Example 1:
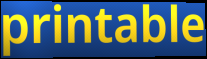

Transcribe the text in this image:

printable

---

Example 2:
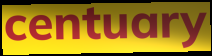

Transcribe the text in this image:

centuary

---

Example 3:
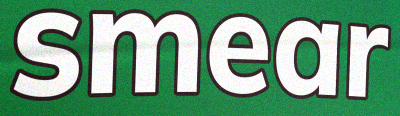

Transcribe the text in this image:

smear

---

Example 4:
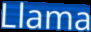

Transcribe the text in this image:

Llama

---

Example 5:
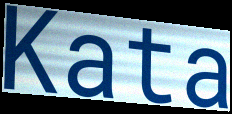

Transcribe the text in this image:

Kata